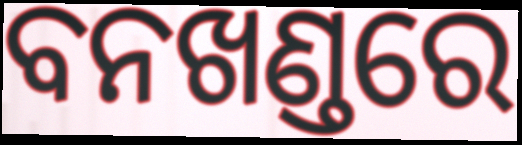
ବନଖଣ୍ଡରେ